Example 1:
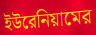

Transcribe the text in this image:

ইউরেনিয়ামের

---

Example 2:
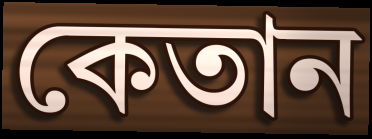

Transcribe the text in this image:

কেতান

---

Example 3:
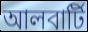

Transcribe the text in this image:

আলবার্টি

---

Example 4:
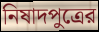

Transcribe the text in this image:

নিষাদপুত্রের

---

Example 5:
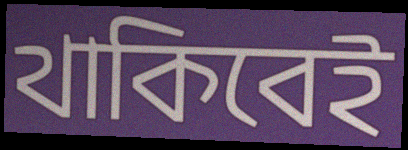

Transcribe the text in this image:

থাকিবেই